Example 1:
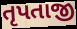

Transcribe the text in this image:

તૃપતાજી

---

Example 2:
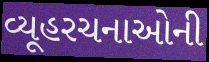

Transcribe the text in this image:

વ્યૂહરચનાઓની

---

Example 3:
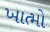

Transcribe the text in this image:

ખાત્મો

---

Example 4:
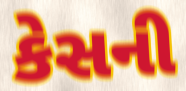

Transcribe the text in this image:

કેસની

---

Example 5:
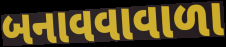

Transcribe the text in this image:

બનાવવાવાળા